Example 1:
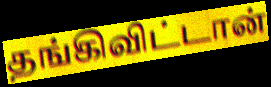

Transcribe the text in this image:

தங்கிவிட்டான்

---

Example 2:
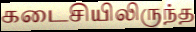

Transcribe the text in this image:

கடைசியிலிருந்த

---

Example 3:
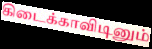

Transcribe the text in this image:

கிடைக்காவிடினும்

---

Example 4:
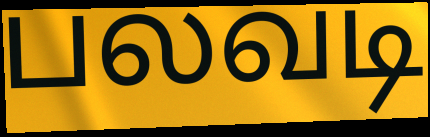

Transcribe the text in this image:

பலவடி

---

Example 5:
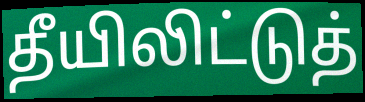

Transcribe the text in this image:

தீயிலிட்டுத்